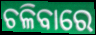
ଚଳିବାରେ